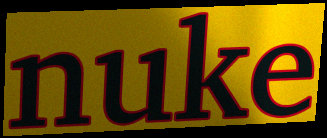
nuke